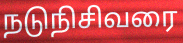
நடுநிசிவரை